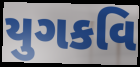
યુગકવિ